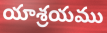
యాశ్రయము